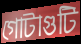
গোটাগুটি